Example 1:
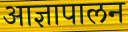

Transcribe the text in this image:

आज्ञापालन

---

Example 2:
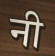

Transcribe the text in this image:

नी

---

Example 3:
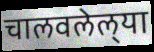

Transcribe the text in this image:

चालवलेल्या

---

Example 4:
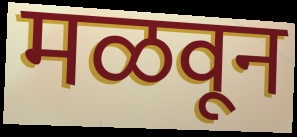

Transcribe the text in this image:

मळवून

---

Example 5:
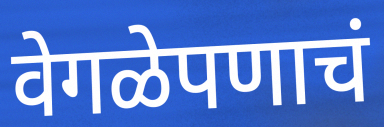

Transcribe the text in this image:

वेगळेपणाचं